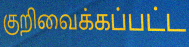
குறிவைக்கப்பட்ட